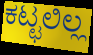
ಕಟ್ಟಲಿಲ್ಲ